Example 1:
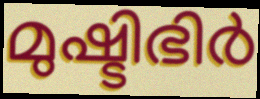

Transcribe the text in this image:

മുഷ്ടിഭിർ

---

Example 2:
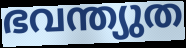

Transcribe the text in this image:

ഭവന്ത്യുത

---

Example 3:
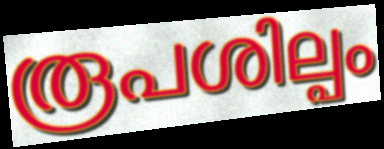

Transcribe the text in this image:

രൂപശില്പം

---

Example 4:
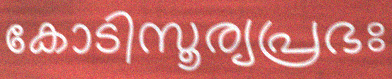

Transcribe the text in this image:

കോടിസൂര്യപ്രഭഃ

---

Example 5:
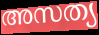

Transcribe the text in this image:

അസത്യ